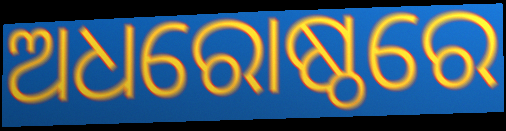
ଅଧରୋଷ୍ଠରେ